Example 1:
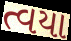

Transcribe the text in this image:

ત્વયા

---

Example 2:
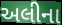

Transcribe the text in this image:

અલીના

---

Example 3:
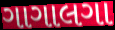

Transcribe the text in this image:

ગાગાલગા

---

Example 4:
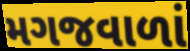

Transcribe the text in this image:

મગજવાળાં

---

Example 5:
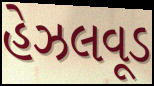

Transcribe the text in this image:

હેઝલવૂડ